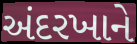
અંદરખાને